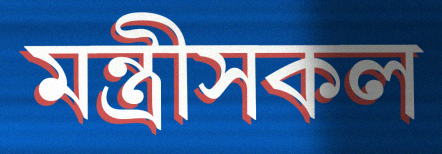
মন্ত্ৰীসকল